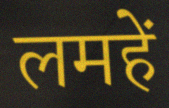
लमहें